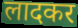
लादकर